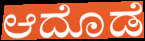
ಆದೊಡೆ